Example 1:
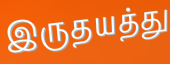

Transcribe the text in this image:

இருதயத்து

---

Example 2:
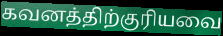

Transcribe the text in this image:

கவனத்திற்குரியவை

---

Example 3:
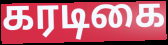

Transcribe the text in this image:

கரடிகை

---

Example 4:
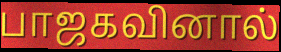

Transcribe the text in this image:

பாஜகவினால்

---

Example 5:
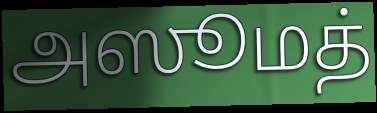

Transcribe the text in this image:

அஸூமத்